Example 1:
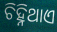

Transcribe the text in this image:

ଚିହ୍ନିଥାଏ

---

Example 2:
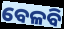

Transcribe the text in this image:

ବେଳବି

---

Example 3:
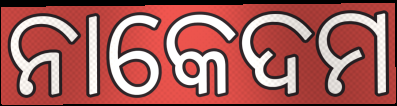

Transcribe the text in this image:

ନାକେଦମ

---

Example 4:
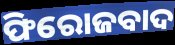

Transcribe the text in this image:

ଫିରୋଜବାଦ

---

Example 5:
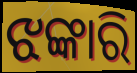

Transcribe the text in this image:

ଝଙ୍କାରି